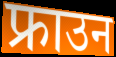
फ्राउन